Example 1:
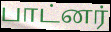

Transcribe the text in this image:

பாட்னர்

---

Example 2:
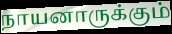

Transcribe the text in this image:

நாயனாருக்கும்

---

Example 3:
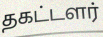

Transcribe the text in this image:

தகட்டளர்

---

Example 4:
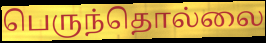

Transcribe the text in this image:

பெருந்தொல்லை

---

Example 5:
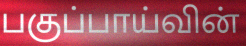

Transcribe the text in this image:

பகுப்பாய்வின்